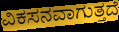
ವಿಕಸನವಾಗುತ್ತದೆ